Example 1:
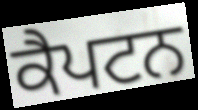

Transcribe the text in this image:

ਕੈਪਟਨ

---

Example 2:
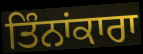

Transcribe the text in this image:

ਤਿੰਨਾਂਕਾਰਾ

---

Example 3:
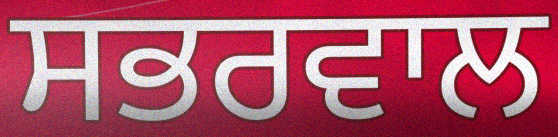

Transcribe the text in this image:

ਸਭਰਵਾਲ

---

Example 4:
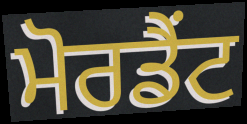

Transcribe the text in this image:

ਮੋਰਡੈਂਟ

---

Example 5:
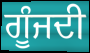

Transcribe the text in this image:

ਗੂੰਜਦੀ